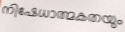
നിഷേധാത്മകതയും